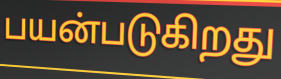
பயன்படுகிறது